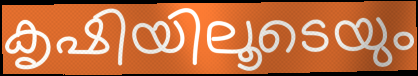
കൃഷിയിലൂടെയും